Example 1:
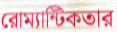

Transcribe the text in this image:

রোম্যান্টিকতার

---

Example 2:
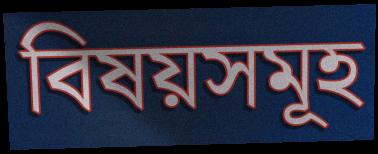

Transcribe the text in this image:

বিষয়সমূহ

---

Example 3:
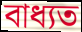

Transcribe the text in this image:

বাধ্যত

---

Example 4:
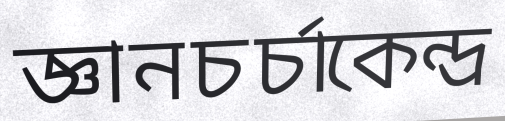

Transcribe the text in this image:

জ্ঞানচর্চাকেন্দ্র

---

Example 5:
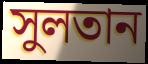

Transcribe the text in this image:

সুলতান